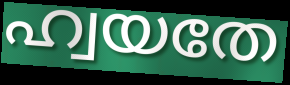
ഹ്വയതേ